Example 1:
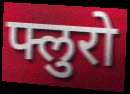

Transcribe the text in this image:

फ्लुरो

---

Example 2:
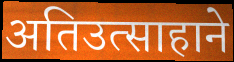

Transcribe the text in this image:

अतिउत्साहाने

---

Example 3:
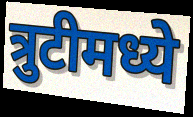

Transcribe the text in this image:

त्रुटीमध्ये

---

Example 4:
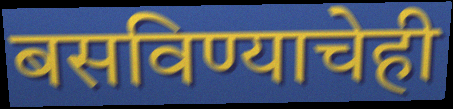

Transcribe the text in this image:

बसविण्याचेही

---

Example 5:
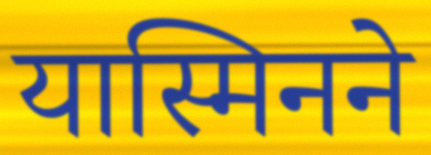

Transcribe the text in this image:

यास्मिनने